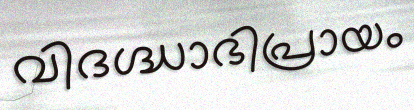
വിദഗ്ദ്ധാഭിപ്രായം